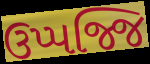
ઉપ્પજ્જિ